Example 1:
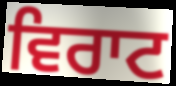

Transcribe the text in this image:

ਵਿਰਾਟ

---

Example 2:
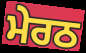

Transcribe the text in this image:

ਮੇਰਠ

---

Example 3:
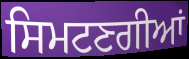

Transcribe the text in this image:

ਸਿਮਟਣਗੀਆਂ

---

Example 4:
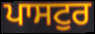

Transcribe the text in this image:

ਪਾਸਟੁਰ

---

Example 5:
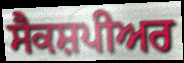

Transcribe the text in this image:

ਸੈਕਸ਼ਪੀਅਰ